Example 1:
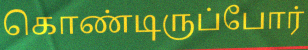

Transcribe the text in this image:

கொண்டிருப்போர்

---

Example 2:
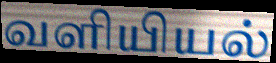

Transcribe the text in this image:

வளியியல்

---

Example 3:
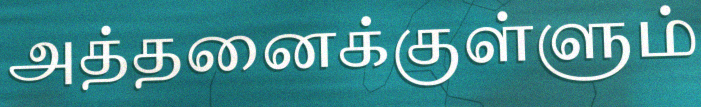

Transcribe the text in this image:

அத்தனைக்குள்ளும்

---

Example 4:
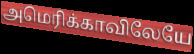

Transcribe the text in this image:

அமெரிக்காவிலேயே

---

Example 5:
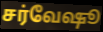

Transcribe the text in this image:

சர்வேஷூ